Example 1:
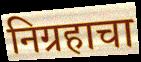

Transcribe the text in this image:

निग्रहाचा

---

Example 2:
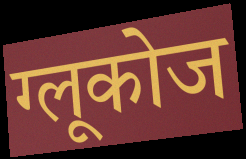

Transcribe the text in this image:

ग्लूकोज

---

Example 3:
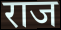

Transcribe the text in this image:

राज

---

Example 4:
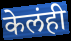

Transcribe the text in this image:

केलंही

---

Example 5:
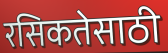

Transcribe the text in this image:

रसिकतेसाठी